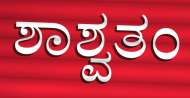
ಶಾಶ್ವತಂ